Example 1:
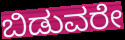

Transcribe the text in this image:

ಬಿಡುವರೇ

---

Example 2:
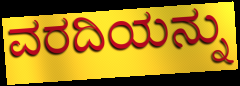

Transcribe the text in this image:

ವರದಿಯನ್ನು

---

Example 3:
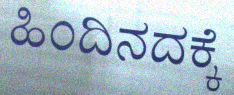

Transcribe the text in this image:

ಹಿಂದಿನದಕ್ಕೆ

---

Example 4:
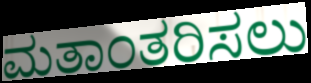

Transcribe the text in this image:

ಮತಾಂತರಿಸಲು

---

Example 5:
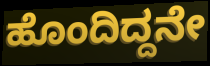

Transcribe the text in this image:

ಹೊಂದಿದ್ದನೇ